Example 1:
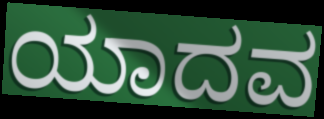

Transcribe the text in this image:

ಯಾದವ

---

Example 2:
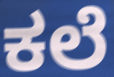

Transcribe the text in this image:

ಕಲೆ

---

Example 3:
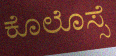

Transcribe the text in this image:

ಕೊಲೊಸ್ಸೆ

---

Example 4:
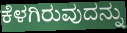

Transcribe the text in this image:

ಕೆಳಗಿರುವುದನ್ನು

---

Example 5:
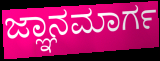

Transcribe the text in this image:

ಜ್ಞಾನಮಾರ್ಗ